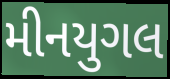
મીનયુગલ